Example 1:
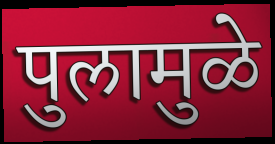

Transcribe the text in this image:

पुलामुळे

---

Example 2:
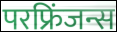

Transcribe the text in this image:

परफ्रिंजन्स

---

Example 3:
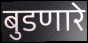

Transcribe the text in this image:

बुडणारे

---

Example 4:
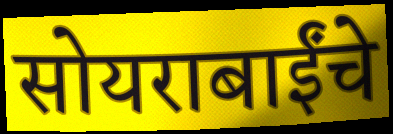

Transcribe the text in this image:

सोयराबाईंचे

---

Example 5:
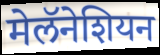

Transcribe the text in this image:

मेलॅनेशियन